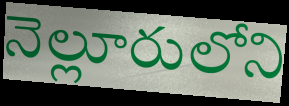
నెల్లూరులోని